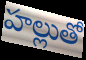
హల్లుతో